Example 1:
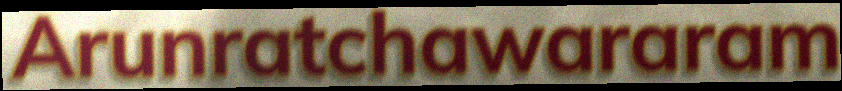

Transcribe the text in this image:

Arunratchawararam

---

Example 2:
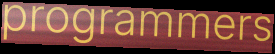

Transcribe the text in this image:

programmers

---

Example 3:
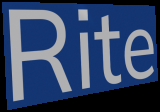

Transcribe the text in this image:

Rite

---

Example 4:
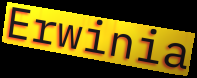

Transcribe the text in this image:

Erwinia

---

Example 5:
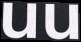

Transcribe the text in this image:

uu